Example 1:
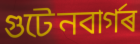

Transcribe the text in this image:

গুটেনবাৰ্গৰ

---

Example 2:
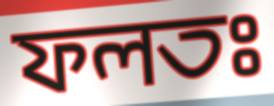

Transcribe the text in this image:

ফলতঃ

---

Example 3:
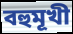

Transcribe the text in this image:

বহুমূখী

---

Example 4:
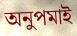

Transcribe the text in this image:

অনুপমাই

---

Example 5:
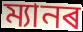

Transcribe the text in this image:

ম্যানৰ